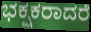
ಭಕ್ಷಕರಾದರೆ